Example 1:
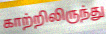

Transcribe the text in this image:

காற்றிலிருந்து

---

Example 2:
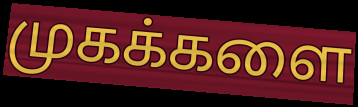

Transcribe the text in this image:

முகக்களை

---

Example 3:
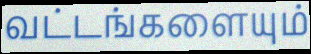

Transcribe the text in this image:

வட்டங்களையும்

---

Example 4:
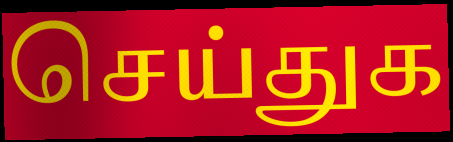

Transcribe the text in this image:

செய்துக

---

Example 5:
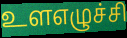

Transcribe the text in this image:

உளஎழுச்சி